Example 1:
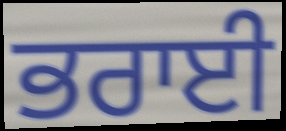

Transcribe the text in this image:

ਭਰਾਈ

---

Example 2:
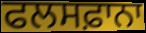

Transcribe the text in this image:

ਫਲਸਫ਼ਾਨਾ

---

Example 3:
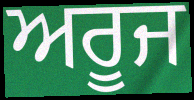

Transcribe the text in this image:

ਅਰੂਜ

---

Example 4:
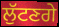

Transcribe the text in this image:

ਲੁੱਟਣਗੇ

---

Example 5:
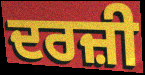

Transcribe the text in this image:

ਦਰਜ਼ੀ